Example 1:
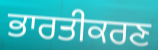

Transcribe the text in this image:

ਭਾਰਤੀਕਰਣ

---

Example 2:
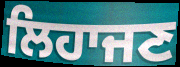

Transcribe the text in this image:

ਲਿਹਾਜਣ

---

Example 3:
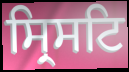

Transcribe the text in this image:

ਸ੍ਰਿਸਟਿ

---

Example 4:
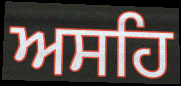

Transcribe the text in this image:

ਅਸਹਿ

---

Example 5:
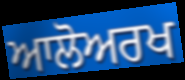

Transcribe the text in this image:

ਆਲੋਅਰਖ